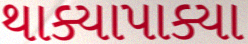
થાક્યાપાક્યા